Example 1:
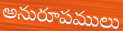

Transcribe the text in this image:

అనురూపములు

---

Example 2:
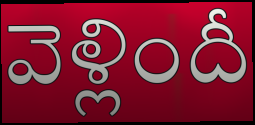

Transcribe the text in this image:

వెళ్లిందీ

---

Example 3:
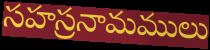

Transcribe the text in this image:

సహస్రనామములు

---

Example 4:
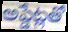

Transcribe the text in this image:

అప్డేట్లతో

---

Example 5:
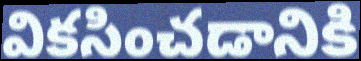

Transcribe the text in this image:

వికసించడానికి